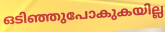
ഒടിഞ്ഞുപോകുകയില്ല